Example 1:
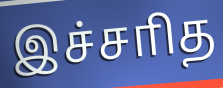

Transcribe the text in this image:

இச்சரித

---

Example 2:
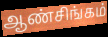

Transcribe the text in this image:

ஆண்சிங்கம்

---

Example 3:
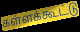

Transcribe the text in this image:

கள்ளக்கூட்டு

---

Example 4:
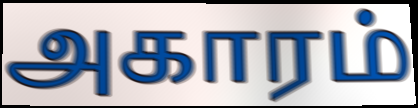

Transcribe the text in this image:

அகாரம்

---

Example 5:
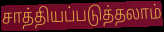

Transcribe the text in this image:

சாத்தியப்படுத்தலாம்